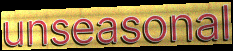
unseasonal